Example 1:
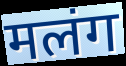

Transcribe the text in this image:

मलंग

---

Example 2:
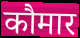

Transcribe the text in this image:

कौमार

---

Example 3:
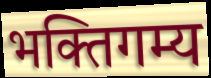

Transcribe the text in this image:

भक्तिगम्य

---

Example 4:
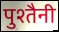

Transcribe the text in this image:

पुश्तैनी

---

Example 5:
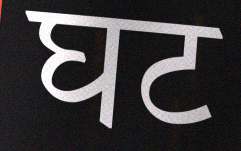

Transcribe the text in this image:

घट